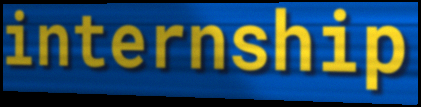
internship